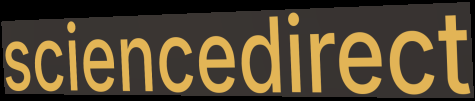
sciencedirect